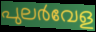
പുലർവേള